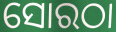
ସୋରଠା